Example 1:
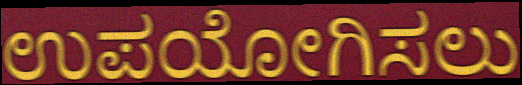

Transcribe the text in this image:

ಉಪಯೋಗಿಸಲು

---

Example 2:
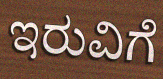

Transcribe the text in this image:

ಇರುವಿಗೆ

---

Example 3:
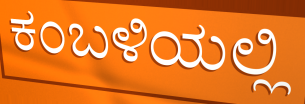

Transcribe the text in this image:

ಕಂಬಳಿಯಲ್ಲಿ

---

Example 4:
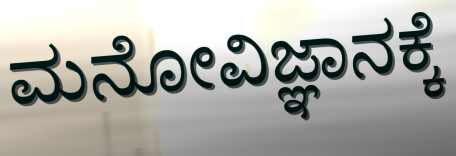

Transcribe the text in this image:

ಮನೋವಿಜ್ಞಾನಕ್ಕೆ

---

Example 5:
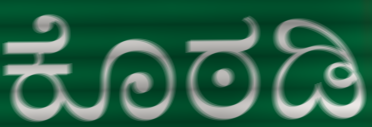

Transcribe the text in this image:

ಕೊಠಡಿ